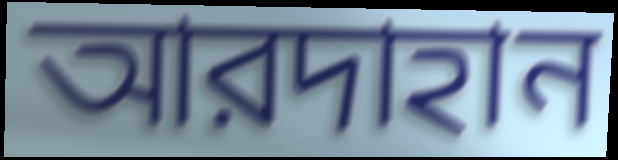
আরদাহান